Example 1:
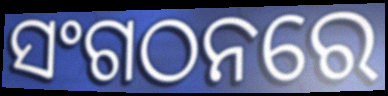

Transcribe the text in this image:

ସଂଗଠନରେ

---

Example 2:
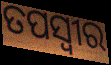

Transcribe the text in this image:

ତପସ୍ଵୀର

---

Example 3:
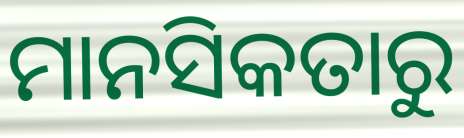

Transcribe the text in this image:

ମାନସିକତାରୁ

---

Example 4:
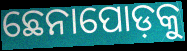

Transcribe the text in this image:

ଛେନାପୋଡ଼କୁ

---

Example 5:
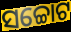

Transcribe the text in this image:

ସଚ୍ଚୋଟ